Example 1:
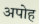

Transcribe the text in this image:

अपोह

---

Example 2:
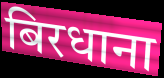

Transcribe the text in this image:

बिरधाना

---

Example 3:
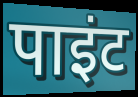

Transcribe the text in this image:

पाइंट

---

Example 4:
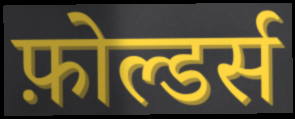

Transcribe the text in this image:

फ़ोल्डर्स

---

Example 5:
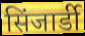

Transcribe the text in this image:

सिंजार्डी